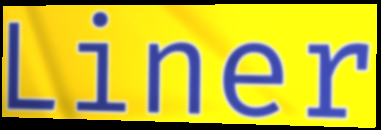
Liner